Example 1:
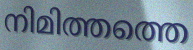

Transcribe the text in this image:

നിമിത്തത്തെ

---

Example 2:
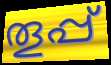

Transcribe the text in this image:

തൂപ്പ്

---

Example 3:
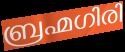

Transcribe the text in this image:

ബ്രഹ്മഗിരി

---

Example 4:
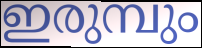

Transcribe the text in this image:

ഇരുമ്പും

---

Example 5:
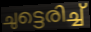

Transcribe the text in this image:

ചുട്ടെരിച്ച്